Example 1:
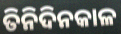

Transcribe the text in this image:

ତିନିଦିନକାଳ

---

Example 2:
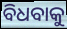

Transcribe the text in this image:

ବିଧବାକୁ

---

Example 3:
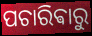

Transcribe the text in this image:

ପଚାରିଵାରୁ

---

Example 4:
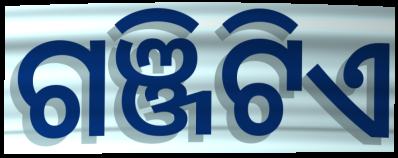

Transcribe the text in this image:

ଗଞ୍ଜିଟିଏ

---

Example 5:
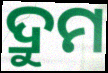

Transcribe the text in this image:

ଦ୍ରୁମ